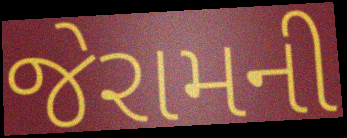
જેરામની